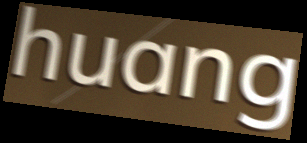
huang